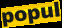
popul